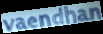
vaendhan